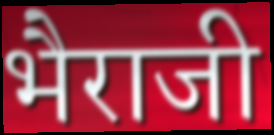
भैराजी